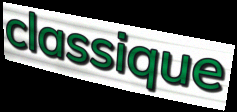
classique